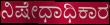
ನಿಷೇಧಾಧಿಕಾರ